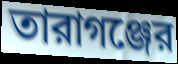
তারাগঞ্জের